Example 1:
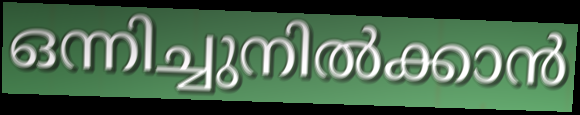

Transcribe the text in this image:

ഒന്നിച്ചുനിൽക്കാൻ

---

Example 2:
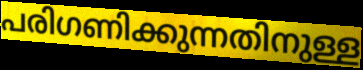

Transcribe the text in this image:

പരിഗണിക്കുന്നതിനുള്ള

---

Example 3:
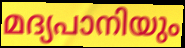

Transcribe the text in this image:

മദ്യപാനിയും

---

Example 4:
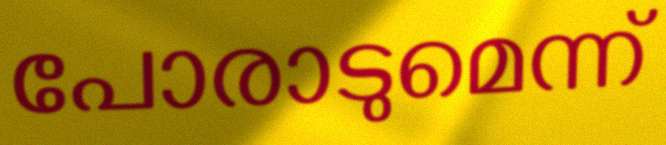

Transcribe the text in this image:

പോരാടുമെന്ന്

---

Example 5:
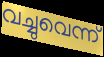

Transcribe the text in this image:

വച്ചുവെന്ന്